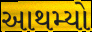
આથમ્યો